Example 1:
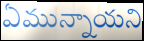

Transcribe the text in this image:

ఏమున్నాయని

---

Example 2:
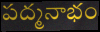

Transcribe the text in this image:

పద్మనాభం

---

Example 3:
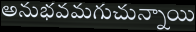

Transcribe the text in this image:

అనుభవమగుచున్నాయి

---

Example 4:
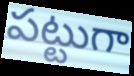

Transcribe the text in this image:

పట్టుగా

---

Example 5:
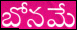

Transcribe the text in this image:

బోనమే